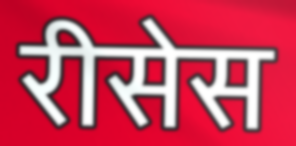
रीसेस